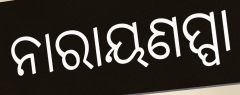
ନାରାୟଣପ୍ପା